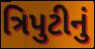
ત્રિપુટીનું